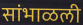
सांभाळली